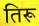
तिरू